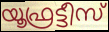
യൂഫ്രട്ടീസ്